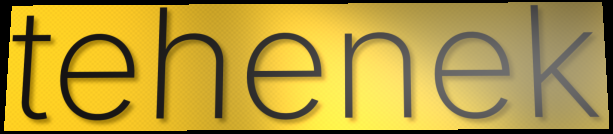
tehenek